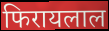
फिरायलाल